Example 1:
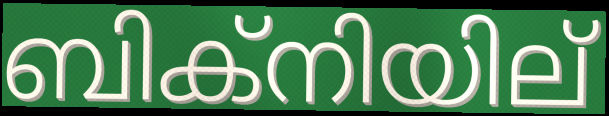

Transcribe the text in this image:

ബിക്നിയില്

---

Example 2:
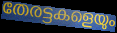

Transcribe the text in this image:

തേരട്ടകളെയും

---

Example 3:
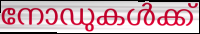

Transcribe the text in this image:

നോഡുകൾക്ക്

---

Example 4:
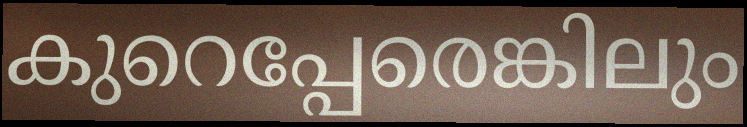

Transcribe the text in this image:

കുറെപ്പേരെങ്കിലും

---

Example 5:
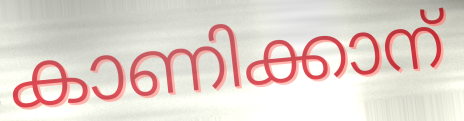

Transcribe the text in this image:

കാണിക്കാന്